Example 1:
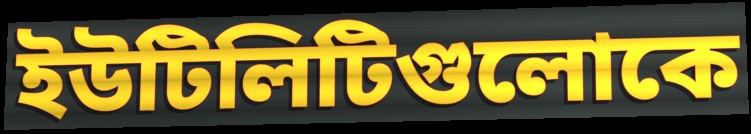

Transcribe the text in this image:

ইউটিলিটিগুলোকে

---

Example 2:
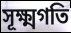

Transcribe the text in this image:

সূক্ষ্মগতি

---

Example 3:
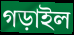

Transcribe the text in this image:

গড়াইল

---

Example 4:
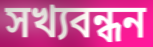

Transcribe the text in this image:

সখ্যবন্ধন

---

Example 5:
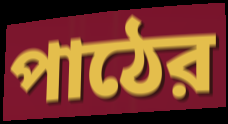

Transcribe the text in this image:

পাঠের